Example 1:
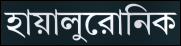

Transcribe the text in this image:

হায়ালুরোনিক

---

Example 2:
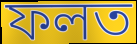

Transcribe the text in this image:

ফলত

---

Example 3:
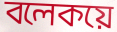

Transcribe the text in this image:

বলেকয়ে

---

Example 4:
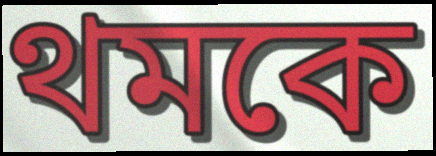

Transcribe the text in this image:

থমকে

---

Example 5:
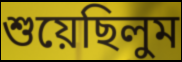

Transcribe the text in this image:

শুয়েছিলুম